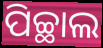
ପିଚ୍ଛାଲ